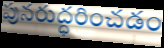
పునరుద్ధరించడం